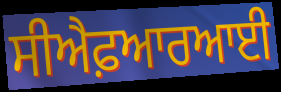
ਸੀਐਫ਼ਆਰਆਈ